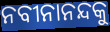
ନବୀନାନନ୍ଦକୁ